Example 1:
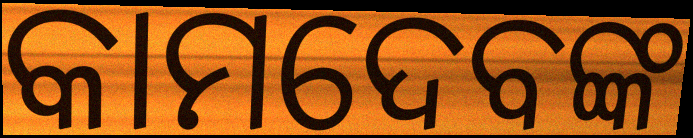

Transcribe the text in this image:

କାମଦେବଙ୍କ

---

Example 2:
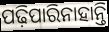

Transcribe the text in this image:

ପଢ଼ିପାରିନାହାନ୍ତି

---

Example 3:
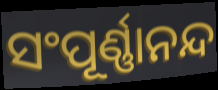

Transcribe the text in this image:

ସଂପୂର୍ଣ୍ଣାନନ୍ଦ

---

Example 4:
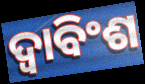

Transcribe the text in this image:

ଦ୍ଵାବିଂଶ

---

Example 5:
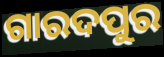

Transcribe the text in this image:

ଗାରଦପୁର